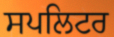
ਸਪਲਿਟਰ